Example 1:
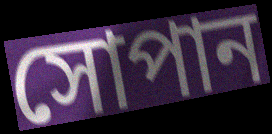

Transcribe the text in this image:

সোপান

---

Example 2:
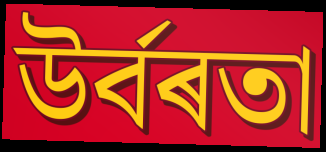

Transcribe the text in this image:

উৰ্বৰতা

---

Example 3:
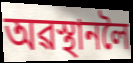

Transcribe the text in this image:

অৱস্থানলৈ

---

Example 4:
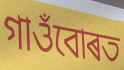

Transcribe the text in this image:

গাওঁবোৰত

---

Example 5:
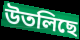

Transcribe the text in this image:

উতলিছে